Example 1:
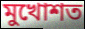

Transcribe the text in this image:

মুখোশত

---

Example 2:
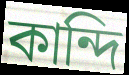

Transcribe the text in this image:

কান্দি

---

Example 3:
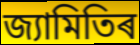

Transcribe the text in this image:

জ্যামিতিৰ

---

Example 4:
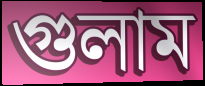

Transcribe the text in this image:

গুলাম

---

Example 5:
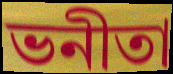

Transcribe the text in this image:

ভনীতা